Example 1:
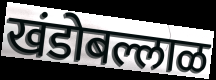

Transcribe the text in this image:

खंडोबल्लाळ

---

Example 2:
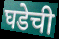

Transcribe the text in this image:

घडेची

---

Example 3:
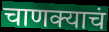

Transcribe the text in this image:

चाणक्याचं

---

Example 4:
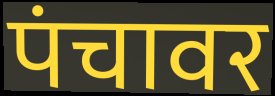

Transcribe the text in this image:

पंचावर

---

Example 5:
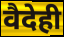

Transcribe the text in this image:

वैदेही